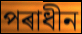
পৰাধীন